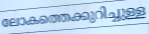
ലോകത്തെക്കുറിച്ചുള്ള